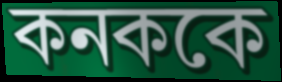
কনককে